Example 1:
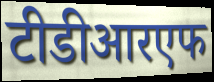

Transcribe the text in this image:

टीडीआरएफ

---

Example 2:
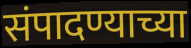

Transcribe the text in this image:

संपादण्याच्या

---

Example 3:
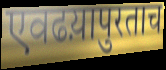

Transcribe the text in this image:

एवढय़ापुरताच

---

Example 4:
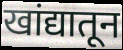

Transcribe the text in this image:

खांद्यातून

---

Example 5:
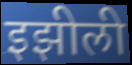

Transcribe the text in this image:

इझीली